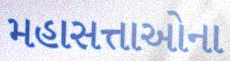
મહાસત્તાઓના